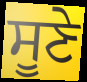
ਸੂਣੇ